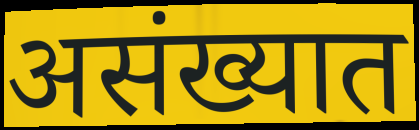
असंख्यात